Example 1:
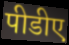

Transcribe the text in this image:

पीडीए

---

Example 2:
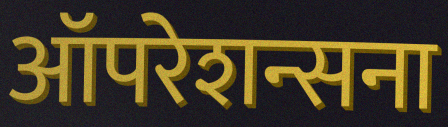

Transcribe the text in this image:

ऑपरेशन्सना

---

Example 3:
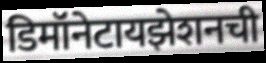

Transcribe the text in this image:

डिमॉनेटायझेशनची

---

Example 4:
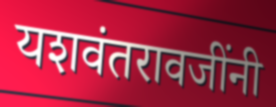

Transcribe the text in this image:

यशवंतरावजींनी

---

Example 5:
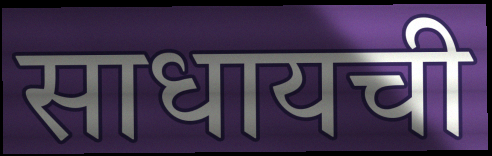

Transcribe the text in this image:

साधायची